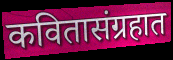
कवितासंग्रहात